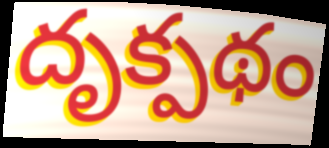
దృక్పథం